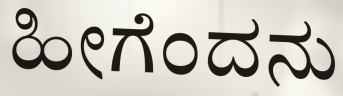
ಹೀಗೆಂದನು